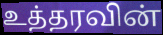
உத்தரவின்